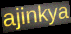
ajinkya